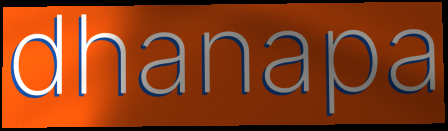
dhanapa